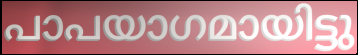
പാപയാഗമായിട്ടു